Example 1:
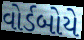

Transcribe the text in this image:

વોર્ડબોયે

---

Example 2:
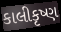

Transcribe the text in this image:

કાલીકૃષ્ણ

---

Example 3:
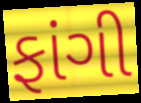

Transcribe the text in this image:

ફાંગી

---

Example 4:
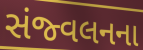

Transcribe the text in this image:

સંજ્વલનના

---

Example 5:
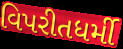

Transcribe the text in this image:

વિપરીતધર્મી